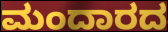
ಮಂದಾರದ